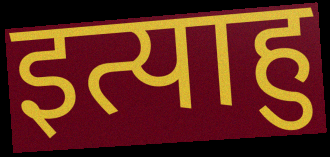
इत्याहु